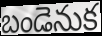
బండెనుక